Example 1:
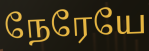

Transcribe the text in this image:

நேரேயே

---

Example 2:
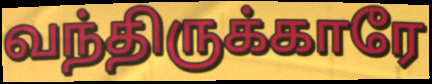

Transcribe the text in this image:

வந்திருக்காரே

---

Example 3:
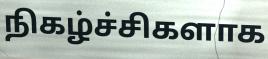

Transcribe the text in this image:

நிகழ்ச்சிகளாக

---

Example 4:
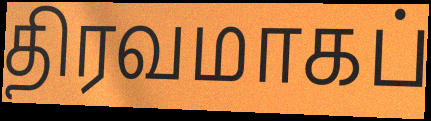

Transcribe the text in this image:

திரவமாகப்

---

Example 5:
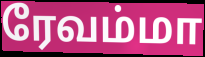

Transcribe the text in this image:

ரேவம்மா